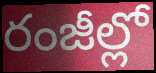
రంజీల్లో